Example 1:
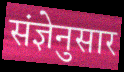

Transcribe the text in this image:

संज्ञेनुसार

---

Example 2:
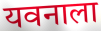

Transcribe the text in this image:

यवनाला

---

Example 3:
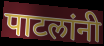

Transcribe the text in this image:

पाटलांनी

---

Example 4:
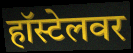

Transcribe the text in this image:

हॉस्टेलवर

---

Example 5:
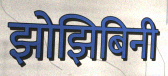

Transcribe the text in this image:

झोझिबिनी